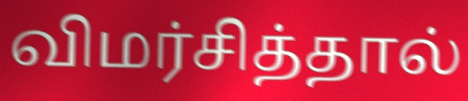
விமர்சித்தால்